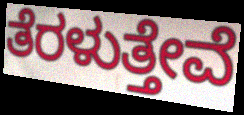
ತೆರಳುತ್ತೇವೆ